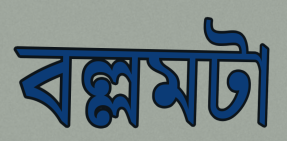
বল্লমটা